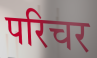
परिचर